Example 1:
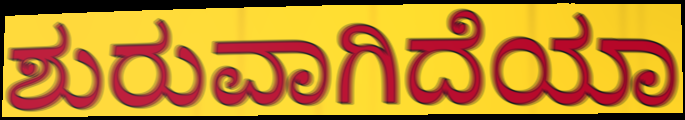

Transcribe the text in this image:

ಶುರುವಾಗಿದೆಯಾ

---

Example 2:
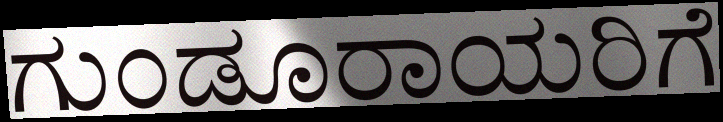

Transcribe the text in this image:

ಗುಂಡೂರಾಯರಿಗೆ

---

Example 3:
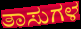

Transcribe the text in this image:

ತಾಸುಗಳ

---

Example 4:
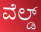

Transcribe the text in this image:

ವೆಲ್ಡ್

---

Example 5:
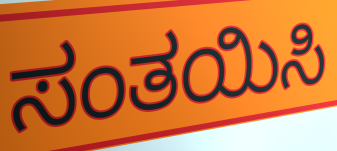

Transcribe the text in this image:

ಸಂತಯಿಸಿ